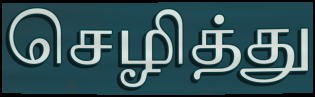
செழித்து